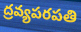
ద్రవ్యపరపతి